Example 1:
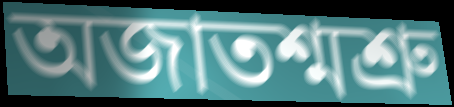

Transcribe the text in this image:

অজাতশ্মশ্রু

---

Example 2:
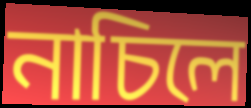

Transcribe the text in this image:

নাচিলে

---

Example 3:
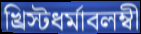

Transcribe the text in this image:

খ্রিস্টধর্মাবলম্বী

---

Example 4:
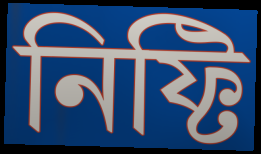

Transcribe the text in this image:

নিফ্টি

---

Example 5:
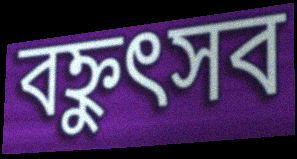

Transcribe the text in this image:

বহ্নুৎসব